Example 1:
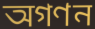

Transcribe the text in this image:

অগণন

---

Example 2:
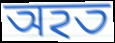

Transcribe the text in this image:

অহত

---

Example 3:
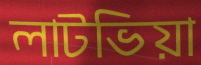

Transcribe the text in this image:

লাটভিয়া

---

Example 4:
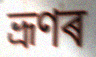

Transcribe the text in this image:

ভ্ৰূণৰ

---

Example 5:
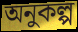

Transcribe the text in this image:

অনুকল্প